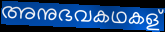
അനുഭവകഥകള്